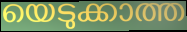
യെടുക്കാത്ത